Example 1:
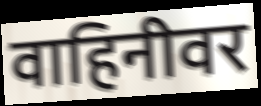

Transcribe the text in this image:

वाहिनीवर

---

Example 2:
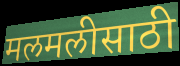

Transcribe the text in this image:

मलमलीसाठी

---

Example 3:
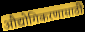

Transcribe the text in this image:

औद्योगिकरणासाठी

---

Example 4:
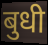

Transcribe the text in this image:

बुधी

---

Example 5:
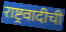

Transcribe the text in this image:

राष्ट्रवादीची